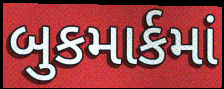
બુકમાર્કમાં